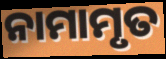
ନାମାମୃତ